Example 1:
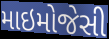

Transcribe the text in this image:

માઇમોજેસી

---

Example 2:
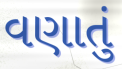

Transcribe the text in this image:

વણાતું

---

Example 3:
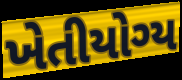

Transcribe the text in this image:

ખેતીયોગ્ય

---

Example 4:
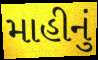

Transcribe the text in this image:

માહીનું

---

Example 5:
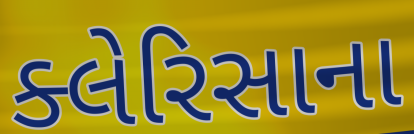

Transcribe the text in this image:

ક્લેરિસાના